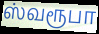
ஸ்வரூபா